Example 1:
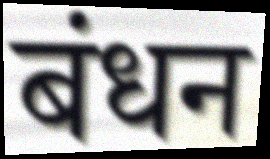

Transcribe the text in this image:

बंधन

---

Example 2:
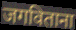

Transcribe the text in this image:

जगविताना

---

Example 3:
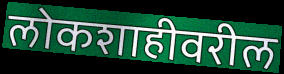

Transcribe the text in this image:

लोकशाहीवरील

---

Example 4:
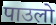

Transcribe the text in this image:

पाउलो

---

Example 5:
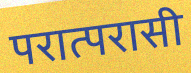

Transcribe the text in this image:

परात्परासी